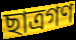
ছাত্রগণ